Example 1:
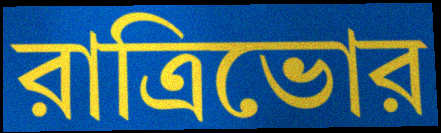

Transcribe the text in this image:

রাত্রিভোর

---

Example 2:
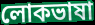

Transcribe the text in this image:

লোকভাষা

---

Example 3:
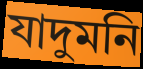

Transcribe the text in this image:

যাদুমনি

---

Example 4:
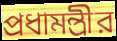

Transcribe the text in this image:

প্রধামন্ত্রীর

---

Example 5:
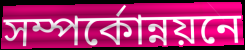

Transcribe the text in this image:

সম্পর্কোন্নয়নে